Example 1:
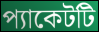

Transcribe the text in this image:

প্যাকেটটি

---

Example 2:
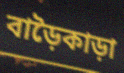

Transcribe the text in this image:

বাড়ৈকাড়া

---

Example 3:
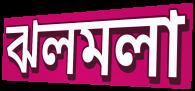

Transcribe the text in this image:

ঝলমলা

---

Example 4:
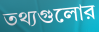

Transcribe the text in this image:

তথ্যগুলোর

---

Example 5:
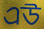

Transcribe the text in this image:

এউ